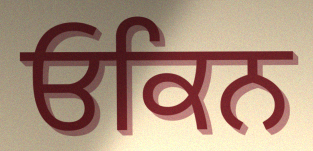
ਓਕਿਨ